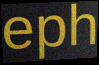
eph